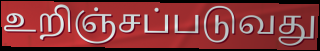
உறிஞ்சப்படுவது